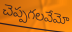
చెప్పగలవేమో